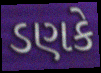
ડણકે